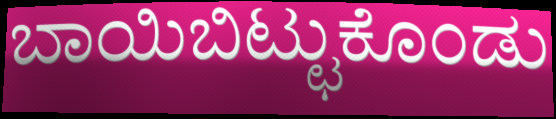
ಬಾಯಿಬಿಟ್ಟುಕೊಂಡು